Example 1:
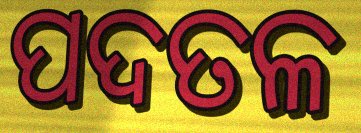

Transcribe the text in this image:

ପଦତଳ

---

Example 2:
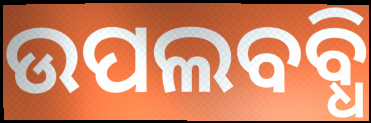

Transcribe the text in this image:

ଉପଲବବ୍ଧି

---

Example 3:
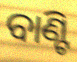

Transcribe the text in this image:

ବାଣ୍ଟି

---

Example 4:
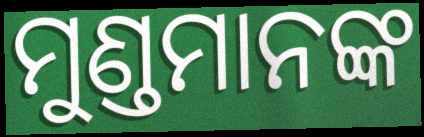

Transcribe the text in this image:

ମୁଣ୍ଡମାନଙ୍କ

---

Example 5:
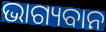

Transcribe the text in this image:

ଭାଗ୍ୟବାନ